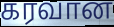
கரவான